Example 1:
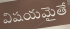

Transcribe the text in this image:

విషయమైతే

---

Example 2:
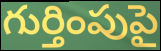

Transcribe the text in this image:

గుర్తింపుపై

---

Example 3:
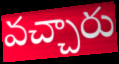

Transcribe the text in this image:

వచ్చారు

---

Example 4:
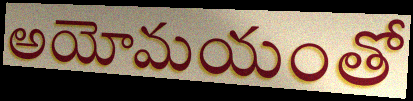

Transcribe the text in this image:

అయోమయంతో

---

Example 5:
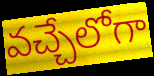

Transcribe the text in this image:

వచ్చేలోగా